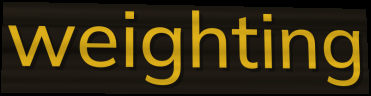
weighting